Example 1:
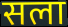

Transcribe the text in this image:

सला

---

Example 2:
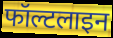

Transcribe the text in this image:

फॉल्टलाइन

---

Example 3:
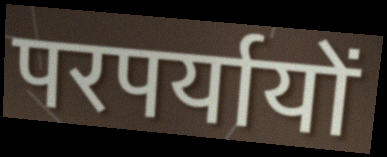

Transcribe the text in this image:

परपर्यायों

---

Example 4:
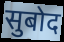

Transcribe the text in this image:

सुबोद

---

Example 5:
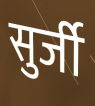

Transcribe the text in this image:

सुर्जी